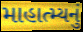
માહાત્મ્યનું